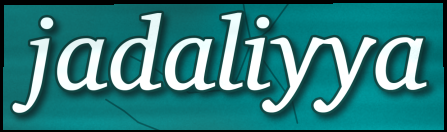
jadaliyya